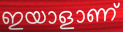
ഇയാളാണ്